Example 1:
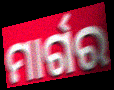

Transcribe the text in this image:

ମାର୍ଗର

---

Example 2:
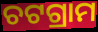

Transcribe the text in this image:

ଚଟଗ୍ରାମ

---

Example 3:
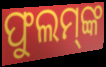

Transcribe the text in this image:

ଫୁଲମ୍‌ଙ୍କ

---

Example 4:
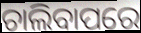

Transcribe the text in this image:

ଚାଲିବାପରେ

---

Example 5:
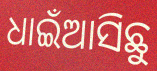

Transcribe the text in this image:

ଧାଇଁଆସିଛୁ